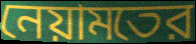
নেয়ামতের